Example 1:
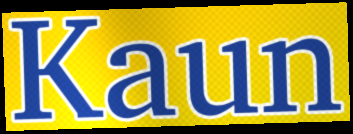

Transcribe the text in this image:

Kaun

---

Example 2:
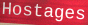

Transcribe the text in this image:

Hostages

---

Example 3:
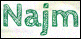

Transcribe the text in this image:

Najm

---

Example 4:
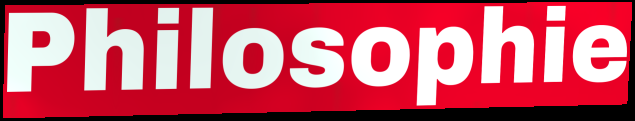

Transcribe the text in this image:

Philosophie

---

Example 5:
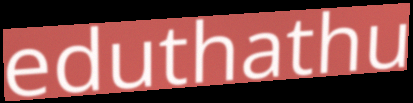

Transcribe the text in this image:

eduthathu